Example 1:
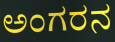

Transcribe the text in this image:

ಅಂಗರನ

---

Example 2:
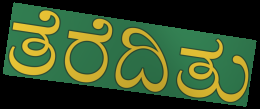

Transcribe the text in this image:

ತೆರೆದಿತು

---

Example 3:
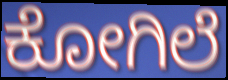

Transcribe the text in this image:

ಕೋಗಿಲೆ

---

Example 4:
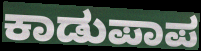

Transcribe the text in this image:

ಕಾಡುಪಾಪ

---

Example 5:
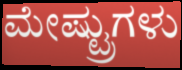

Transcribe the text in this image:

ಮೇಷ್ಟ್ರುಗಳು